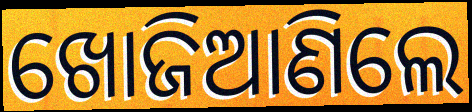
ଖୋଜିଆଣିଲେ